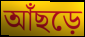
আঁছড়ে